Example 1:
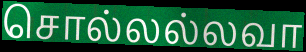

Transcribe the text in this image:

சொல்லல்லவா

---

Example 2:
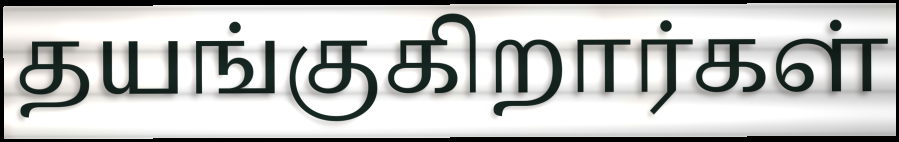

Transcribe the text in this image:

தயங்குகிறார்கள்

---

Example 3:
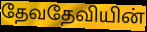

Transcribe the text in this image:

தேவதேவியின்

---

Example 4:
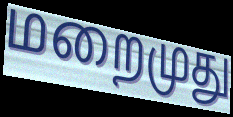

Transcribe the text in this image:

மறைமுது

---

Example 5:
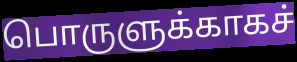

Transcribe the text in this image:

பொருளுக்காகச்